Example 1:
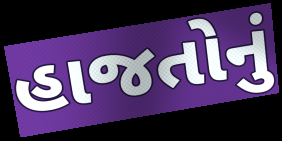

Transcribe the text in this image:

હાજતોનું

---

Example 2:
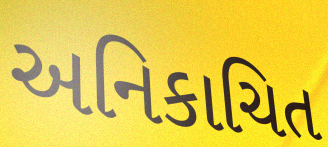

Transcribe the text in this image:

અનિકાચિત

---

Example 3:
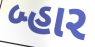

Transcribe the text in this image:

બ્હાર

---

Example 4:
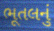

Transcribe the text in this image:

ભૂતલનું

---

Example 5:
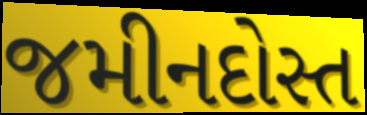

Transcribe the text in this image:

જમીનદોસ્ત